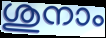
ശുനാം